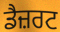
ਡੈਜ਼ਰਟ